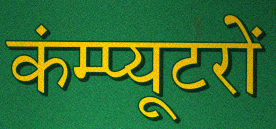
कंम्प्यूटरों